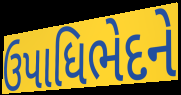
ઉપાધિભેદને